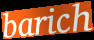
barich